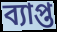
ব্যাপ্ত